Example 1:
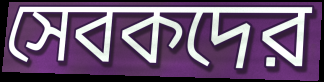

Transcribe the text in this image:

সেবকদের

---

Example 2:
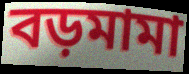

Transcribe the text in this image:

বড়মামা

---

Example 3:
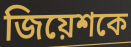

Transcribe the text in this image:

জিয়েশকে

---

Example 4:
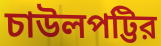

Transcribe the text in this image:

চাউলপট্টির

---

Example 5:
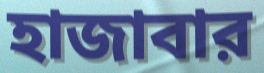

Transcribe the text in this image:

হাজাবার